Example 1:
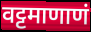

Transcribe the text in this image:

वट्टमाणाणं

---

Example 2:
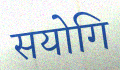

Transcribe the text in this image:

सयोगि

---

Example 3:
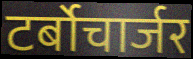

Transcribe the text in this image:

टर्बोचार्जर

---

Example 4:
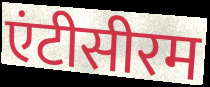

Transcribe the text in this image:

एंटीसीरम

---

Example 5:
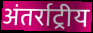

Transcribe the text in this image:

अंतर्राट्रीय